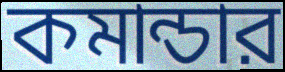
কমান্ডার